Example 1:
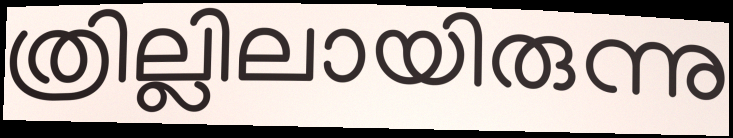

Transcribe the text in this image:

ത്രില്ലിലായിരുന്നു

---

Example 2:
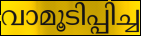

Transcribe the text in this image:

വാമൂടിപ്പിച്ച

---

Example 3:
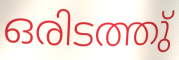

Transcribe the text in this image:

ഒരിടത്തു്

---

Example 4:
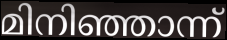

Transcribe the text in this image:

മിനിഞ്ഞാന്ന്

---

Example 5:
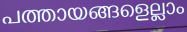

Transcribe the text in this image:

പത്തായങ്ങളെല്ലാം